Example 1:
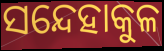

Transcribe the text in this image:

ସନ୍ଦେହାକୁଳ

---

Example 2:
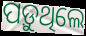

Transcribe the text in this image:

ପଡ଼ୁଥିଲେ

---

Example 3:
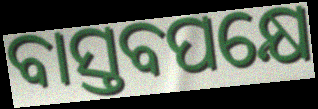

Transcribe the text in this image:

ବାସ୍ତବପକ୍ଷେ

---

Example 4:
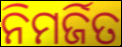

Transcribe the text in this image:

ନିମର୍ଜିତ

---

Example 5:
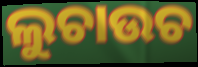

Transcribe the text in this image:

ଲୁଚାଉଚ